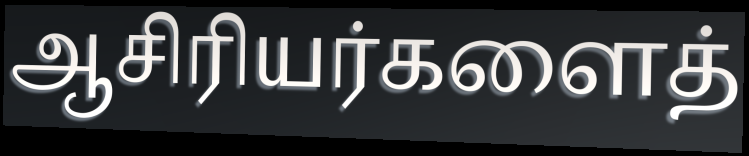
ஆசிரியர்களைத்